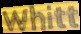
Whitt